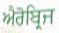
ਐਰੋਬ੍ਰਿਜ